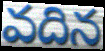
వదిన